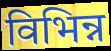
विभिन्न